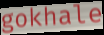
gokhale